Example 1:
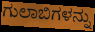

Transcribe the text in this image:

ಗುಲಾಬಿಗಳನ್ನು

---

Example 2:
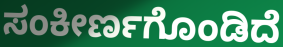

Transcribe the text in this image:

ಸಂಕೀರ್ಣಗೊಂಡಿದೆ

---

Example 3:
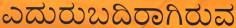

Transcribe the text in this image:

ಎದುರುಬದಿರಾಗಿರುವ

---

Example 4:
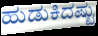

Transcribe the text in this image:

ಹುಡುಕಿದಷ್ಟು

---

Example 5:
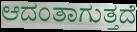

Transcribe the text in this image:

ಆದಂತಾಗುತ್ತದೆ